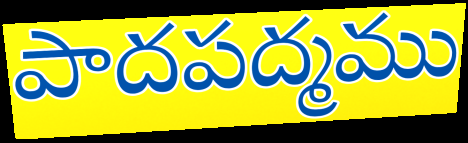
పాదపద్మము